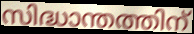
സിദ്ധാന്തത്തിന്